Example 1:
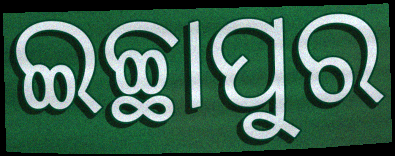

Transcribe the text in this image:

ଇଚ୍ଛାପୁର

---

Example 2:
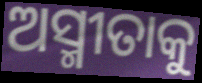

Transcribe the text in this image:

ଅସ୍ମୀତାକୁ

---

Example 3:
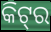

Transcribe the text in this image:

କିଟ୍‌ର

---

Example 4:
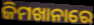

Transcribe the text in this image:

ଜିମଖାନାରେ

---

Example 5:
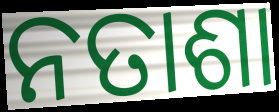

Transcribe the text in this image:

ନତାଶା